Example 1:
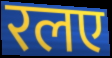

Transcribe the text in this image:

रलए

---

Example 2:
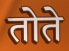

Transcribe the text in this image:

तोते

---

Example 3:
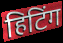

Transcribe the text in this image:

हिटिंग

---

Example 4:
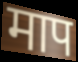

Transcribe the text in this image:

माप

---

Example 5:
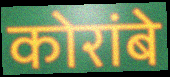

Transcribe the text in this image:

कोरांबे